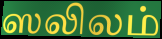
ஸலிலம்